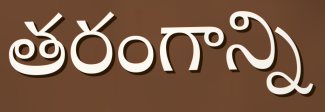
తరంగాన్ని